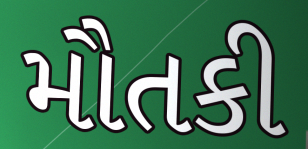
મૌતકી